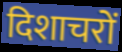
दिशाचरों